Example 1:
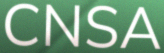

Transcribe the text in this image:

CNSA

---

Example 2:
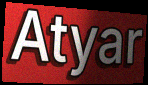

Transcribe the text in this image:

Atyar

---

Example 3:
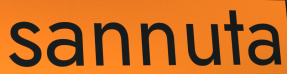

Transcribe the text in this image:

sannuta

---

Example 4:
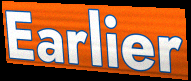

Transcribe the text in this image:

Earlier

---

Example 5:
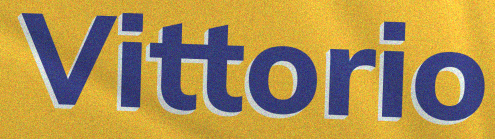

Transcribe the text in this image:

Vittorio